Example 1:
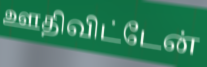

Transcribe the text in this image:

ஊதிவிட்டேன்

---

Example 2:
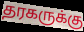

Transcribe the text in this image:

தரகருக்கு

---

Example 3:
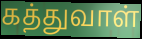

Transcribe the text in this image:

கத்துவாள்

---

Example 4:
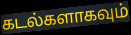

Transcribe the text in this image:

கடல்களாகவும்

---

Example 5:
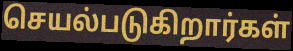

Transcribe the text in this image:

செயல்படுகிறார்கள்